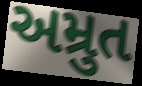
અમ્રુત